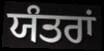
ਯੰਤਰਾਂ